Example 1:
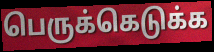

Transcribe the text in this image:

பெருக்கெடுக்க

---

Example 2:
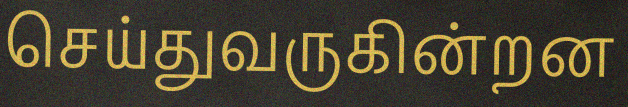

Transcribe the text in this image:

செய்துவருகின்றன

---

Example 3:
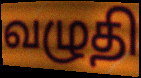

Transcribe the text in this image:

வழுதி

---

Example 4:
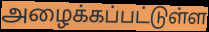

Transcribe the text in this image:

அழைக்கப்பட்டுள்ள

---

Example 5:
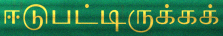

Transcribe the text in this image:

ஈடுபட்டிருக்கக்